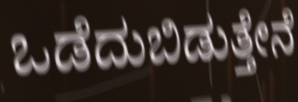
ಒಡೆದುಬಿಡುತ್ತೇನೆ